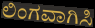
ಲಿಂಗವಾಗಿಸಿ